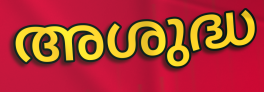
അശുദ്ധ